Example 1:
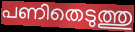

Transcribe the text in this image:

പണിതെടുത്തു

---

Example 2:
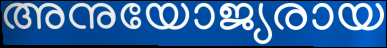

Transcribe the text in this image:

അനുയോജ്യരായ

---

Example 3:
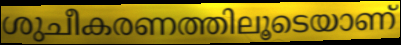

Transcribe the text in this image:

ശുചീകരണത്തിലൂടെയാണ്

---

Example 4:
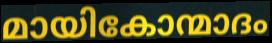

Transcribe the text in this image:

മായികോന്മാദം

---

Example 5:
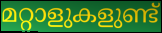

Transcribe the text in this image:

മറ്റാളുകളുണ്ട്